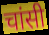
चांसी